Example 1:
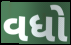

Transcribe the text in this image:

વધો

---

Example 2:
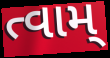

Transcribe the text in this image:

ત્વામ્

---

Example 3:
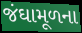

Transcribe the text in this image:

જંઘામૂળના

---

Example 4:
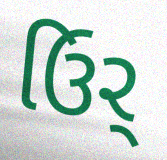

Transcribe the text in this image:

ઉિર્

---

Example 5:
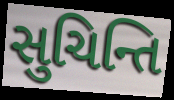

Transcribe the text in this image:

સુચિન્તિ